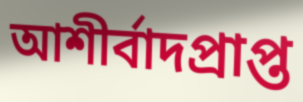
আশীর্বাদপ্রাপ্ত